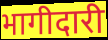
भागीदारी